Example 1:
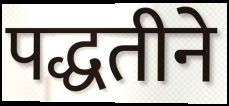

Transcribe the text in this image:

पद्धतीने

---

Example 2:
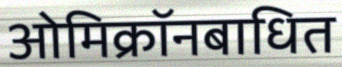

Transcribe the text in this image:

ओमिक्रॉनबाधित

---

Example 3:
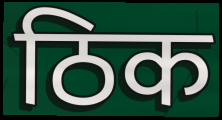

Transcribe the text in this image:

ठिक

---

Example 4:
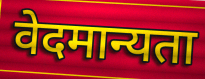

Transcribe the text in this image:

वेदमान्यता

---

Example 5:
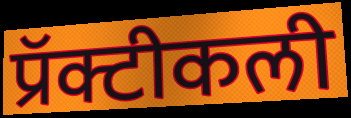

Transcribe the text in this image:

प्रॅक्टीकली